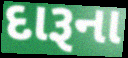
દારૂના